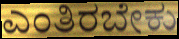
ಎಂತಿರಬೇಕು